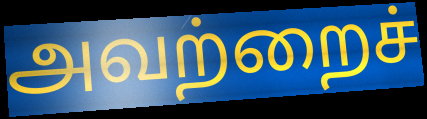
அவற்றைச்